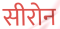
सीरोन